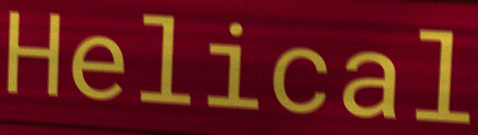
Helical